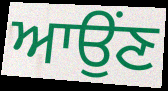
ਆਉਂਣ